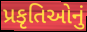
પ્રકૃતિઓનું